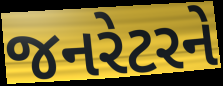
જનરેટરને